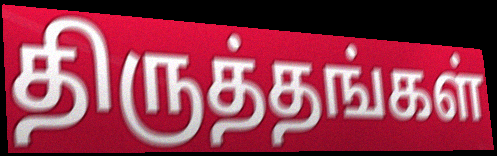
திருத்தங்கள்